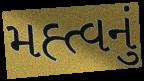
મહ્ત્વનું